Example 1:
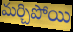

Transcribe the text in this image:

మర్చిపోయి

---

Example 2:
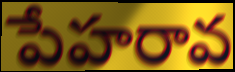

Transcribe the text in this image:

పేహరావ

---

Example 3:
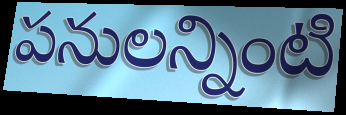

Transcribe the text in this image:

పనులన్నింటి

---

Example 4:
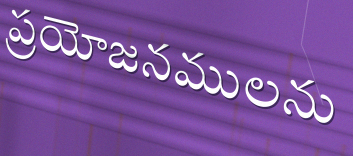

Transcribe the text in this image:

ప్రయోజనములను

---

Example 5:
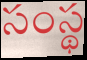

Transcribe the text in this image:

సంస్థ